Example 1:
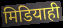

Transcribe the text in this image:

मिडियाही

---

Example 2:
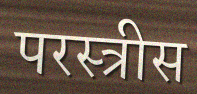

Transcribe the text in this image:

परस्त्रीस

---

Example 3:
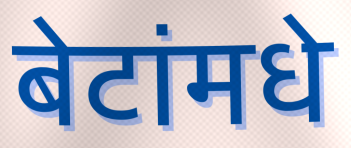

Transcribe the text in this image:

बेटांमधे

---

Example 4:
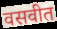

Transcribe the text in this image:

वसवीत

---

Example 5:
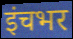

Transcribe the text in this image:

इंचभर